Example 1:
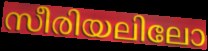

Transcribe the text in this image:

സീരിയലിലോ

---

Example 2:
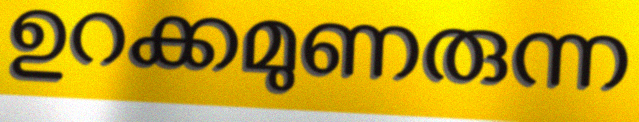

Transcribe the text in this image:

ഉറക്കമുണരുന്ന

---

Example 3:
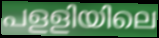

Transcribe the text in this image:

പളളിയിലെ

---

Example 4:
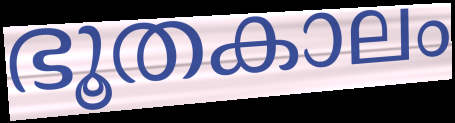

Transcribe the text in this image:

ഭൂതകാലം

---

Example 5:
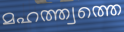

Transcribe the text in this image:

മഹത്ത്വത്തെ